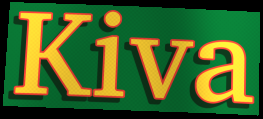
Kiva